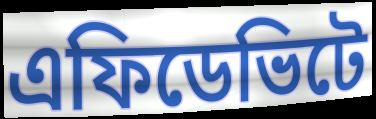
এফিডেভিটে